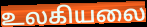
உலகியலை